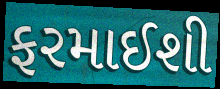
ફરમાઈશી